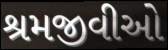
શ્રમજીવીઓ